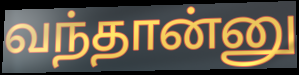
வந்தான்னு